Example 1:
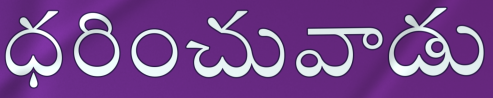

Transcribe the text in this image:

ధరించువాడు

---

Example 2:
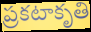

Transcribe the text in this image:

ప్రకటాకృతి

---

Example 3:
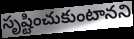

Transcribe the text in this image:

సృష్టించుకుంటానని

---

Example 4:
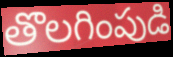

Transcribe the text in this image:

తొలగింపుడి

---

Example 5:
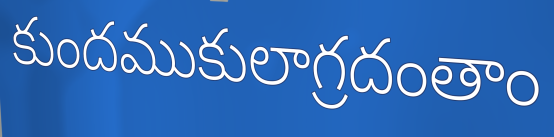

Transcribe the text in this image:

కుందముకులాగ్రదంతాం